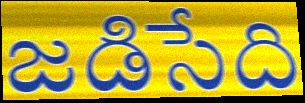
జడిసేది